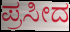
ಪ್ರಸೀದ